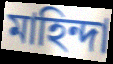
মাহিন্দা